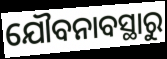
ଯୌବନାବସ୍ଥାରୁ